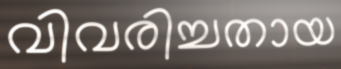
വിവരിച്ചതായ